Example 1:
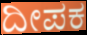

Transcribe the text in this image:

ದೀಪಕ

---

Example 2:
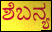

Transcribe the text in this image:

ಶೆಬನ್ಯ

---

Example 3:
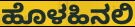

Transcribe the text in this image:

ಹೊಳಹಿನಲಿ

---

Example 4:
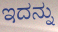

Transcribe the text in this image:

ಇದನ್ನು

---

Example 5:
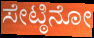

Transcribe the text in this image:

ಸೇಟ್ಠಿನೋ